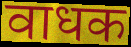
वाधक